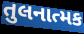
તુલનાત્મક